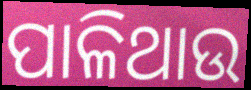
ପାଳିଥାଉ